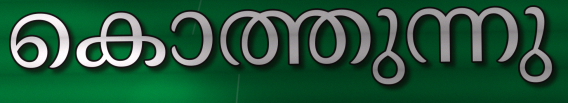
കൊത്തുന്നു